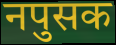
नपुसक